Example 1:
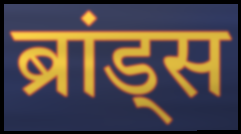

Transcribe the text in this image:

ब्रांड्स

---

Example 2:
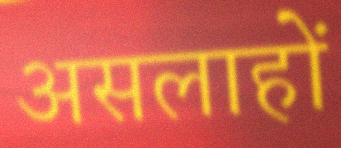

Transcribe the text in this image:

असलाहों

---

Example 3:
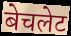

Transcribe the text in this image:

बेचलेट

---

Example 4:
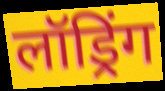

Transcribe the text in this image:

लॉड्रिंग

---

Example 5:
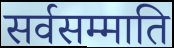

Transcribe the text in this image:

सर्वसम्माति